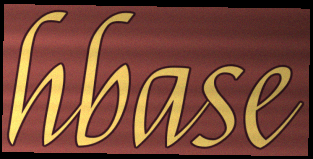
hbase